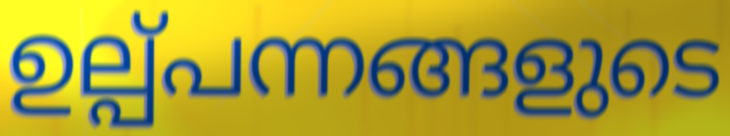
ഉല്പ്പന്നങ്ങളുടെ